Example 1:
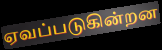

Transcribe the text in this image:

ஏவப்படுகின்றன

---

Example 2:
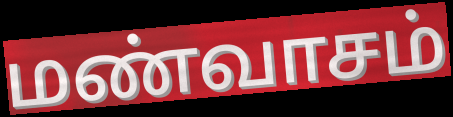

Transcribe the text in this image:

மண்வாசம்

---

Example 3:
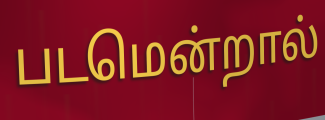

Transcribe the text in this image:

படமென்றால்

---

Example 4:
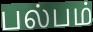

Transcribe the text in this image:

பல்பம்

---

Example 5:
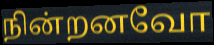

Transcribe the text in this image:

நின்றனவோ